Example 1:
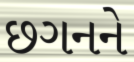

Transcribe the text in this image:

છગનને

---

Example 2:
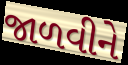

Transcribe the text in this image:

જાળવીને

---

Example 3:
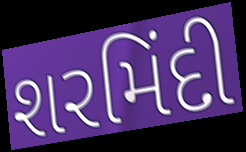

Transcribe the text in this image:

શરમિંદી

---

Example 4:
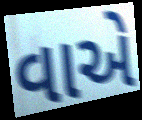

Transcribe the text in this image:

વાએ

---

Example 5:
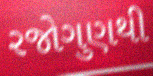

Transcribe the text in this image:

રજોગુણથી